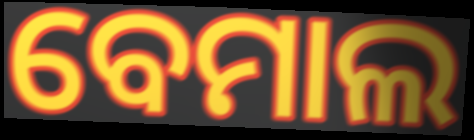
ବେମାଲ